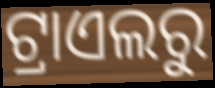
ଟ୍ରାଏଲରୁ